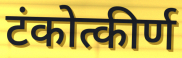
टंकोत्कीर्ण